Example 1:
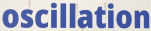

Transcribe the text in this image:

oscillation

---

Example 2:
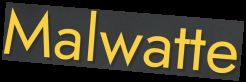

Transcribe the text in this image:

Malwatte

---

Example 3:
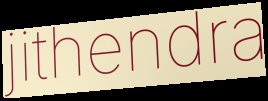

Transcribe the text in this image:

jithendra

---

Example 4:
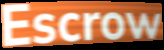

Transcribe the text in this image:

Escrow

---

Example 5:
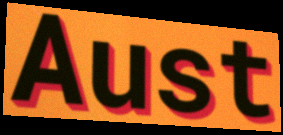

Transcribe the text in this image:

Aust